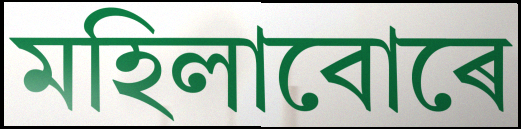
মহিলাবোৰে